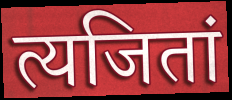
त्यजितां